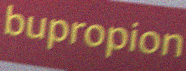
bupropion